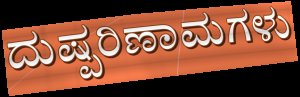
ದುಷ್ಪರಿಣಾಮಗಳು